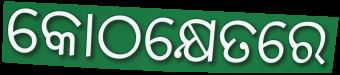
କୋଠକ୍ଷେତରେ